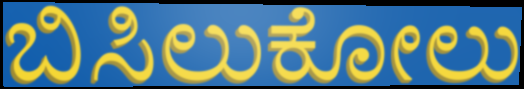
ಬಿಸಿಲುಕೋಲು